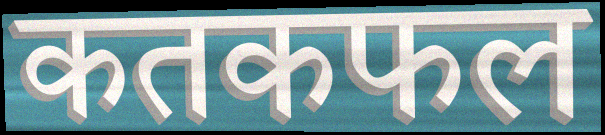
कतकफल